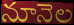
నూనెల